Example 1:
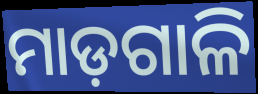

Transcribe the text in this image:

ମାଡ଼ଗାଳି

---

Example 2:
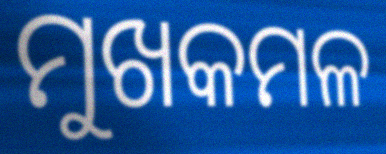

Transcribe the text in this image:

ମୁଖକମଳ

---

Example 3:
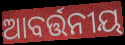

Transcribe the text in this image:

ଆବର୍ତ୍ତନୀୟ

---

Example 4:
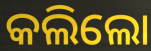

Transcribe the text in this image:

କଲିଲୋ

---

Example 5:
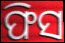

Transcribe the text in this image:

ଫିସ